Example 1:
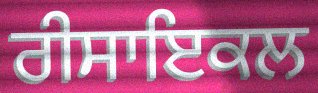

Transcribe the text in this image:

ਰੀਸਾਇਕਲ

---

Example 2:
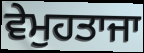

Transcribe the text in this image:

ਵੇਮੁਹਤਾਜਾ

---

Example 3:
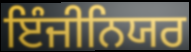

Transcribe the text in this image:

ਇੰਜੀਨਿਯਰ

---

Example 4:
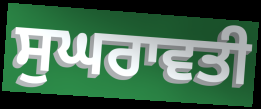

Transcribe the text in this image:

ਸੁਘਰਾਵਤੀ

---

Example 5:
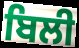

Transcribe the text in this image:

ਬਿਲੀ